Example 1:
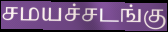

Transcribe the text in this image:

சமயச்சடங்கு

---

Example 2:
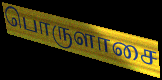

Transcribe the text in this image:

பொருளாசை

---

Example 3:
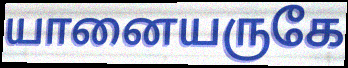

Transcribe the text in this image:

யானையருகே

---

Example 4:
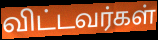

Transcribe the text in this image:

விட்டவர்கள்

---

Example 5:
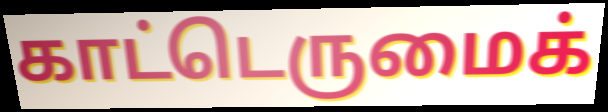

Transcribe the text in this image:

காட்டெருமைக்